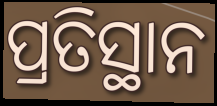
ପ୍ରତିସ୍ଥାନ